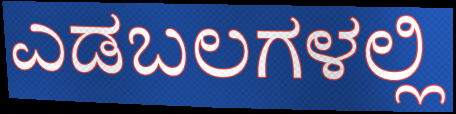
ಎಡಬಲಗಳಲ್ಲಿ